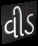
વીડ